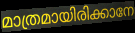
മാത്രമായിരിക്കാനേ